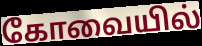
கோவையில்